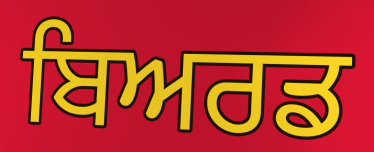
ਬਿਅਰਡ